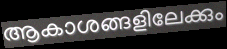
ആകാശങ്ങളിലേക്കും